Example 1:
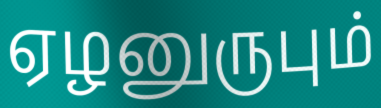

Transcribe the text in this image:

ஏழனுருபும்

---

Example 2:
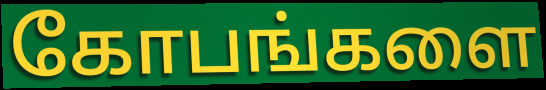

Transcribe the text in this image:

கோபங்களை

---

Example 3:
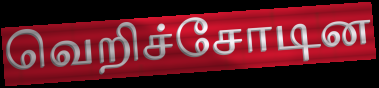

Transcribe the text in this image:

வெறிச்சோடின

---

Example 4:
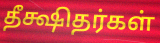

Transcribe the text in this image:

தீக்ஷிதர்கள்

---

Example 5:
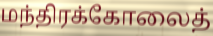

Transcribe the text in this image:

மந்திரக்கோலைத்